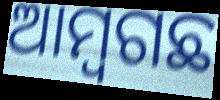
ଆମ୍ବଗଛ